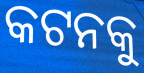
କଟନକୁ